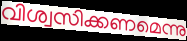
വിശ്വസിക്കണമെന്നു